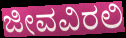
ಜೀವವಿರಲಿ